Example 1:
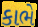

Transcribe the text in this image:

કાભે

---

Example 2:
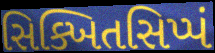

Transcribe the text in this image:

સિક્ખિતસિપ્પં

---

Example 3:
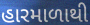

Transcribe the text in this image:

હારમાળાથી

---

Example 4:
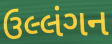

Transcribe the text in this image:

ઉલ્લંગન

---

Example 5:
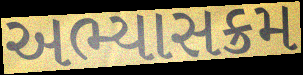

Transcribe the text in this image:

અભ્યાસક્રમ